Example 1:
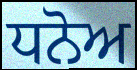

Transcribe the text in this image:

ਧਨੋਅ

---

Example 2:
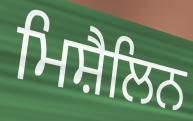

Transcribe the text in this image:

ਮਿਸ਼ੈਲਿਨ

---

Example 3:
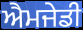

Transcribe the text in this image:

ਐਮਜੇਡੀ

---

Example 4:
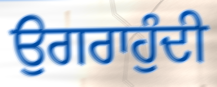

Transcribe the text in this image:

ਉਗਰਾਹੁੰਦੀ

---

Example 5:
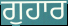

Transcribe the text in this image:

ਗੁਹਾਰ